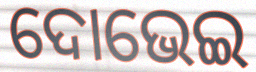
ଦୋଭେଇ